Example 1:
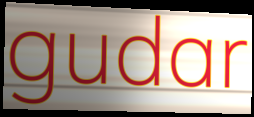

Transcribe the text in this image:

gudar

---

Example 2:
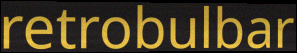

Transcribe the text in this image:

retrobulbar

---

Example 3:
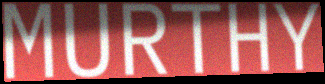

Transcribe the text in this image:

MURTHY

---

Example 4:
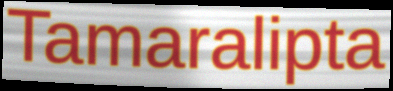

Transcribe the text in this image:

Tamaralipta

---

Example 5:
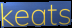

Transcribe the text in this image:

keats